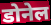
डोनेल